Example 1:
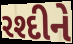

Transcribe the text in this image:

રશ્દીને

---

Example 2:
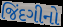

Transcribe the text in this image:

જિંદગીનો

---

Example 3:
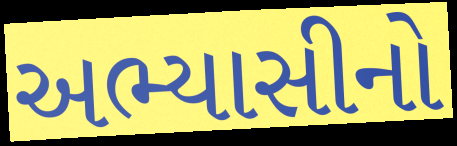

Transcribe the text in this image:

અભ્યાસીનો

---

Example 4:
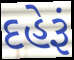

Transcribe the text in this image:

દહેરૂં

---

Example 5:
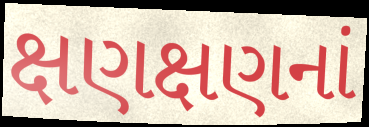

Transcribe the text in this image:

ક્ષણક્ષણનાં